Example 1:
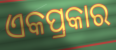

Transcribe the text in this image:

ଏକପ୍ରକାର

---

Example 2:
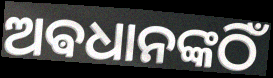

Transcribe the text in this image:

ଅଵଧାନଙ୍କଠିଁ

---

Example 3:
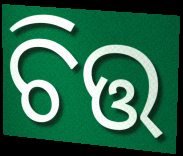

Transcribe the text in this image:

ଚିତ୍ତ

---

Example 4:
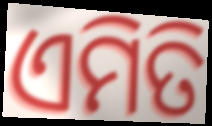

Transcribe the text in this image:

ଏମିତି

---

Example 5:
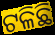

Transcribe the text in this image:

ଟଳିଛି